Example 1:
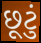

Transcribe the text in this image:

છૂટું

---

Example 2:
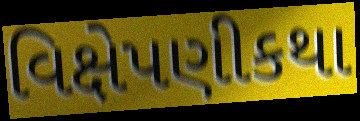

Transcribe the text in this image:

વિક્ષેપણીકથા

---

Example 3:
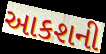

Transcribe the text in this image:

આકશની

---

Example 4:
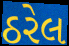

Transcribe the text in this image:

ઠરેલ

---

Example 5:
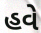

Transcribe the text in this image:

હવે